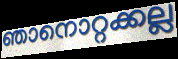
ഞാനൊറ്റക്കല്ല